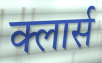
क्लार्स